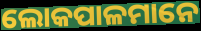
ଲୋକପାଳମାନେ